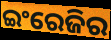
ଇଂରେଜିର